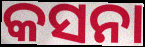
କସନା